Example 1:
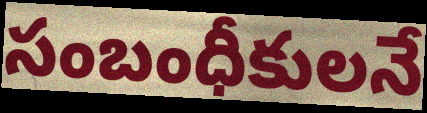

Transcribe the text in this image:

సంబంధీకులనే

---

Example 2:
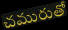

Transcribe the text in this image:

చమురుతో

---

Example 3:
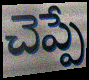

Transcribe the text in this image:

చెప్పే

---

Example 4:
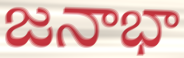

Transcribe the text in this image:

జనాభా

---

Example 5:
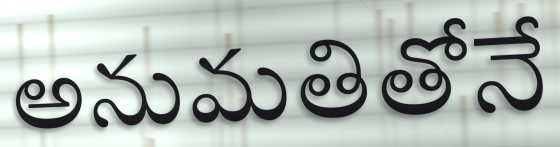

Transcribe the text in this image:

అనుమతితోనే